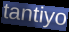
tantiyo